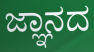
ಜ್ಞಾನದ